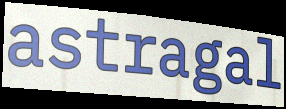
astragal